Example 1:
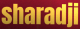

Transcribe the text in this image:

sharadji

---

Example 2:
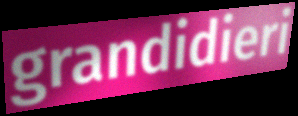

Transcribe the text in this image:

grandidieri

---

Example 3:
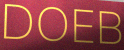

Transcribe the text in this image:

DOEB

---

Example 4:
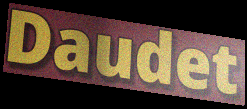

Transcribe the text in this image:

Daudet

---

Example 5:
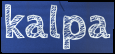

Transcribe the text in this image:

kalpa